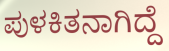
ಪುಳಕಿತನಾಗಿದ್ದೆ